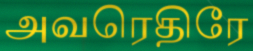
அவரெதிரே